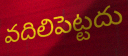
వదిలిపెట్టదు